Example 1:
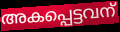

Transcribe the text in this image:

അകപ്പെട്ടവന്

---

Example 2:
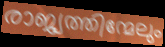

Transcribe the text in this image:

രാജ്യത്തിന്മേലും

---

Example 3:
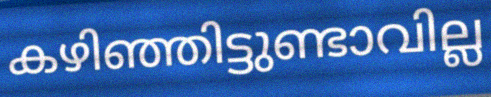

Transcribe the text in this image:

കഴിഞ്ഞിട്ടുണ്ടാവില്ല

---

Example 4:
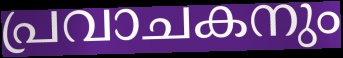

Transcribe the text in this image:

പ്രവാചകനും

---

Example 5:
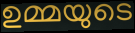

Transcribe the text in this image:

ഉമ്മയുടെ